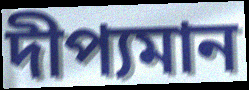
দীপ্যমান